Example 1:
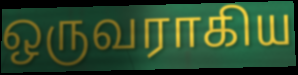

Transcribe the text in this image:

ஒருவராகிய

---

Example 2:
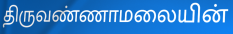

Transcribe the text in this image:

திருவண்ணாமலையின்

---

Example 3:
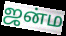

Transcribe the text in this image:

ஜன்ம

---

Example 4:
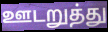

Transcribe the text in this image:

ஊடறுத்து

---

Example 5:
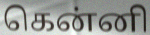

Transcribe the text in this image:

கென்னி